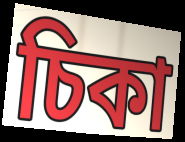
চিকা